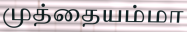
முத்தையம்மா